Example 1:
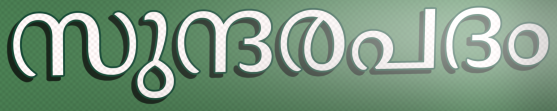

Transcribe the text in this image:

സുന്ദരപദം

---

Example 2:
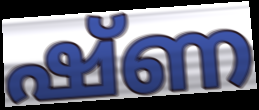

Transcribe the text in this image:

ഷ്ണ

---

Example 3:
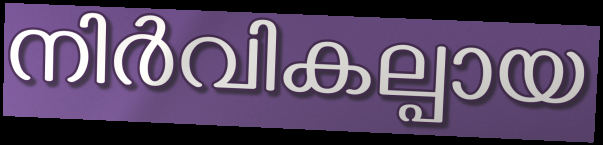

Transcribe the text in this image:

നിർവികല്പായ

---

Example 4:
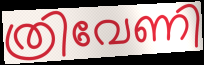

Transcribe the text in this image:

ത്രിവേണി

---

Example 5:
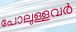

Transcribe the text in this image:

പോലുള്ളവർ